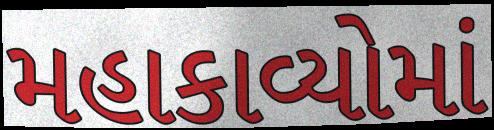
મહાકાવ્યોમાં